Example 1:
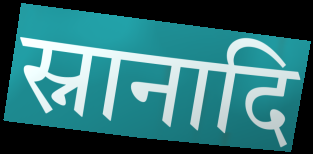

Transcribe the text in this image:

स्नानादि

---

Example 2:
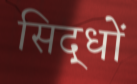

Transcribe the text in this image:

सिद्धों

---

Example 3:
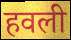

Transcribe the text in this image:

हवली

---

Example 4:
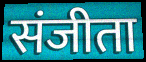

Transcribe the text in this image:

संजीता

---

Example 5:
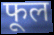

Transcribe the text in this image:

फूल